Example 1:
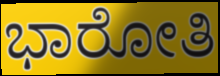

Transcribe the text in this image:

ಭಾರೋತಿ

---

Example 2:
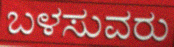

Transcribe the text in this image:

ಬಳಸುವರು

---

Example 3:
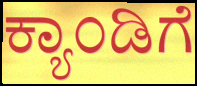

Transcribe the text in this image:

ಕ್ಯಾಂಡಿಗೆ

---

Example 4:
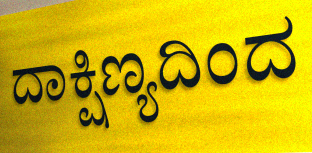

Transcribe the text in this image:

ದಾಕ್ಷಿಣ್ಯದಿಂದ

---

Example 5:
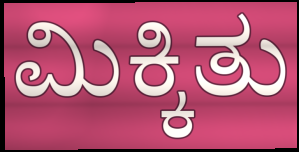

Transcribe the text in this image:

ಮಿಕ್ಕಿತು